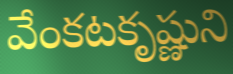
వేంకటకృష్ణుని